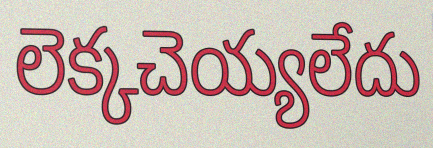
లెక్కచెయ్యలేదు